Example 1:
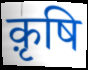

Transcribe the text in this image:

क़ृषि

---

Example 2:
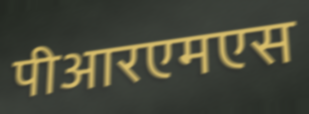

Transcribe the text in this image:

पीआरएमएस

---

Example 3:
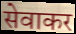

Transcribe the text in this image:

सेवाकर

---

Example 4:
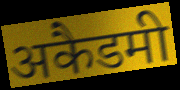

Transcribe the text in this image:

अकैडमी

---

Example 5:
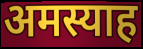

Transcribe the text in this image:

अमस्याह